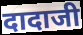
दादाजी